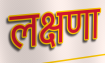
लक्षणा